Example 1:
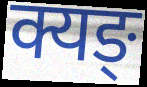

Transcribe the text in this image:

क्यङ्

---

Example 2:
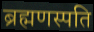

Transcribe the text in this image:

ब्रह्मणस्पति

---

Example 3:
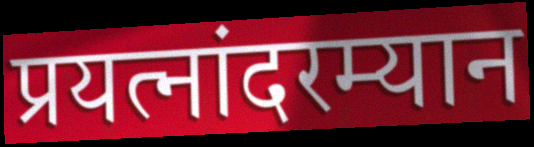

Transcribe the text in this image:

प्रयत्नांदरम्यान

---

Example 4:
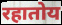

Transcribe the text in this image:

रहातोय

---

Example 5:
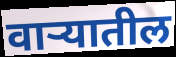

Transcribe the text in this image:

वाऱ्यातील